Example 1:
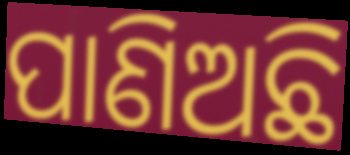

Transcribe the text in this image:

ପାଣିଅଛି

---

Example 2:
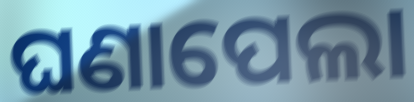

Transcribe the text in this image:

ଘଣାପେଲା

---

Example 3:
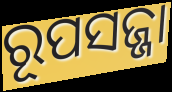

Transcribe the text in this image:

ରୂପସଜ୍ଜା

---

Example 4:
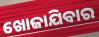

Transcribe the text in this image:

ଖୋଜାଯିବାର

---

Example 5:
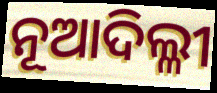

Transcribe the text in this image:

ନୂଆଦିଲ୍ଳୀ